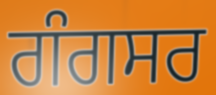
ਗੰਗਸਰ